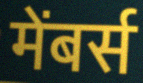
मेंबर्स